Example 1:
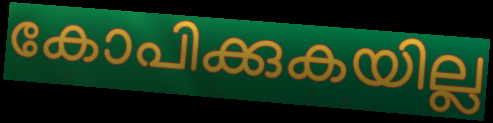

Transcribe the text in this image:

കോപിക്കുകയില്ല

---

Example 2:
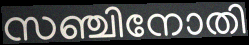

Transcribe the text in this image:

സഞ്ചിനോതി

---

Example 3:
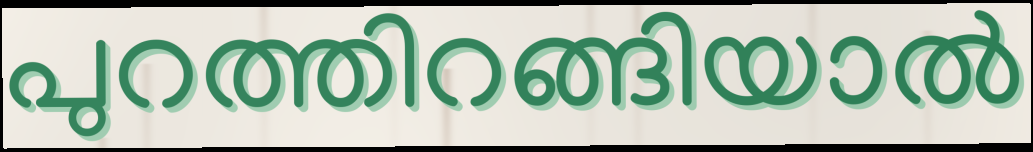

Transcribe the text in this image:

പുറത്തിറങ്ങിയാൽ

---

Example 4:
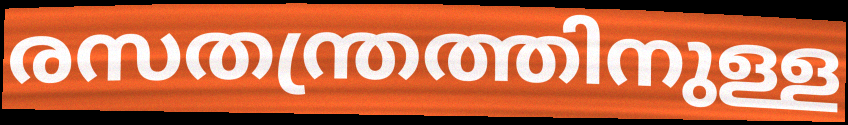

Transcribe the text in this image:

രസതന്ത്രത്തിനുള്ള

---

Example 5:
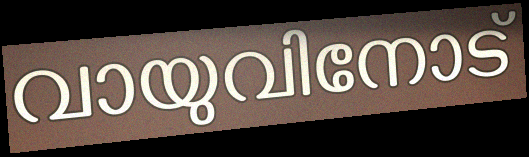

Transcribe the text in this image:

വായുവിനോട്